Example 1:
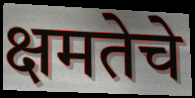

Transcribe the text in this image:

क्षमतेचे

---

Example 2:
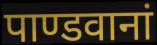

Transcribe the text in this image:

पाण्डवानां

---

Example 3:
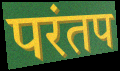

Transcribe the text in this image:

परंतप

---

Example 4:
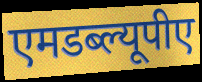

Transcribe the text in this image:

एमडब्ल्यूपीए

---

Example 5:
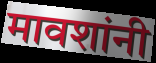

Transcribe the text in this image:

मावशांनी